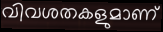
വിവശതകളുമാണ്